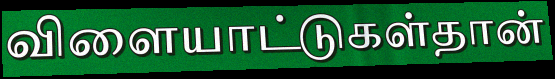
விளையாட்டுகள்தான்